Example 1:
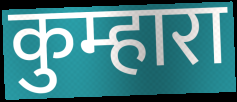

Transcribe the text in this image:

कुम्हारा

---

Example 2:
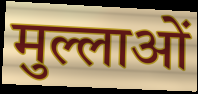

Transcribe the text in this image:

मुल्लाओं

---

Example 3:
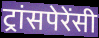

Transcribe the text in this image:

ट्रांसपेरेंसी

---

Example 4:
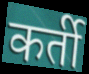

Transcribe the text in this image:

कर्ती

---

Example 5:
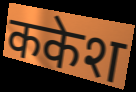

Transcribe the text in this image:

ककेश